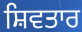
ਸ਼ਿਵਤਾਰ